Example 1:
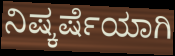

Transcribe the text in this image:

ನಿಷ್ಕರ್ಷೆಯಾಗಿ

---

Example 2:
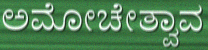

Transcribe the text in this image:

ಅಮೋಚೇತ್ವಾವ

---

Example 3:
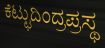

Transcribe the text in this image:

ಕೆಟ್ಟುದಿಂದ್ರಪ್ರಸ್ಥ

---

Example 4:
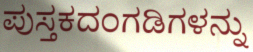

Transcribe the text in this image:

ಪುಸ್ತಕದಂಗಡಿಗಳನ್ನು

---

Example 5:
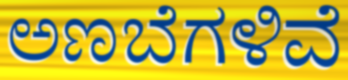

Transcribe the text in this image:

ಅಣಬೆಗಳಿವೆ